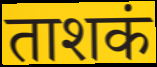
ताशकं